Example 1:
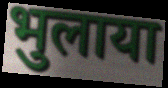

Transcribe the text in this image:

भुलाया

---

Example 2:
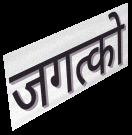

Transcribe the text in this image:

जगत्को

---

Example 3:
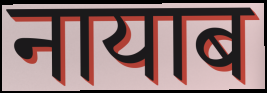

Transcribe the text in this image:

नायाब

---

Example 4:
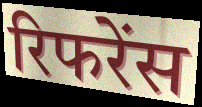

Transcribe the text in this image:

रिफरेंस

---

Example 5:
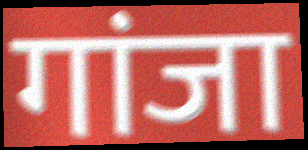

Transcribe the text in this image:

गांजा